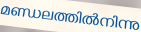
മണ്ഡലത്തിൽനിന്നു